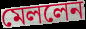
মেললেন